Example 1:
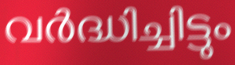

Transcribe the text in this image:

വർദ്ധിച്ചിട്ടും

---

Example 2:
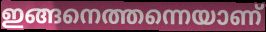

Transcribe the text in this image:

ഇങ്ങനെത്തന്നെയാണ്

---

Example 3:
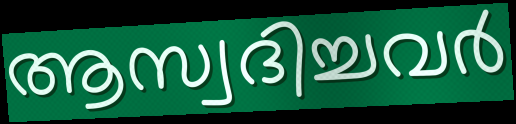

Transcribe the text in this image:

ആസ്വദിച്ചവർ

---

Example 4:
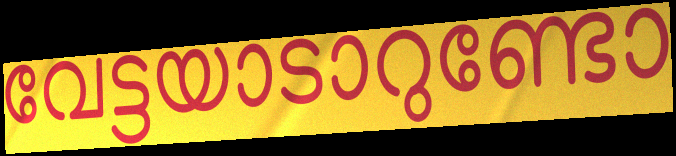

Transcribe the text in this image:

വേട്ടയാടാറുണ്ടോ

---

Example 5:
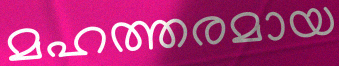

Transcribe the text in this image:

മഹത്തരമായ